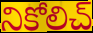
నికోలిచ్